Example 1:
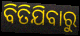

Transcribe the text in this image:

ବିତିଯିବାରୁ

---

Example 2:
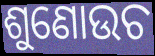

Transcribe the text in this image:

ଶୁଣୋଉଚ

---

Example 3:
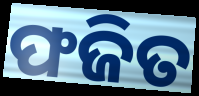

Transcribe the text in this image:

ଫଜିତ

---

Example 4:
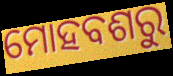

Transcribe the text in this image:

ମୋହବଶରୁ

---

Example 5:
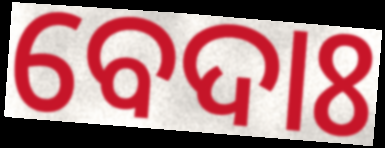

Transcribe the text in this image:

ବେଦାଃ